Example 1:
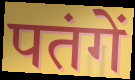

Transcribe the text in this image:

पतंगें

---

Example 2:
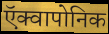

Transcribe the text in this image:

ऍक्वापोनिक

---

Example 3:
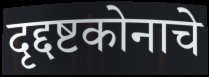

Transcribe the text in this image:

दृद्दष्टकोनाचे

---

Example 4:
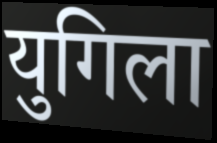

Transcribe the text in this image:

युगिला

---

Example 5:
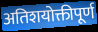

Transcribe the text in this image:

अतिशयोक्तीपूर्ण